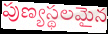
పుణ్యస్థలమైన